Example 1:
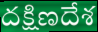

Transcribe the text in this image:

దక్షిణదేశ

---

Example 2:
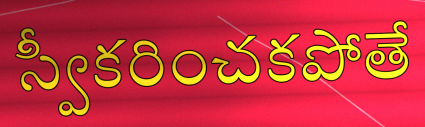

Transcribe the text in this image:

స్వీకరించకపోతే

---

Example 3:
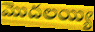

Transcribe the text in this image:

మొదలయ్యి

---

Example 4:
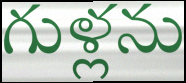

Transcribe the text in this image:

గుళ్లను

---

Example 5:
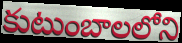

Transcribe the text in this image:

కుటుంబాలలోని